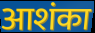
आशंका